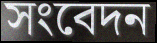
সংবেদন